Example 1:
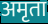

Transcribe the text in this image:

अमृता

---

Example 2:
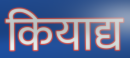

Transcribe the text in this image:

कियाद्य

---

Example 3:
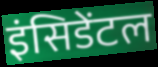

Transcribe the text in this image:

इंसिडेंटल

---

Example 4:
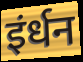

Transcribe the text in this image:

इंर्धन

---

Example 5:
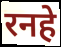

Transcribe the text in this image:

रनहे